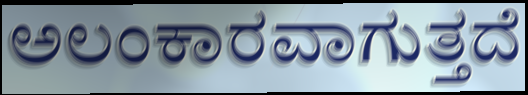
ಅಲಂಕಾರವಾಗುತ್ತದೆ